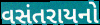
વસંતરાયનો